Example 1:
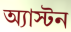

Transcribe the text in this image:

অ্যাস্টন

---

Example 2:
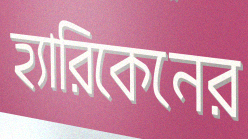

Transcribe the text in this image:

হ্যারিকেনের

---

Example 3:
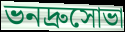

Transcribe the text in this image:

ভনদ্রুসোভা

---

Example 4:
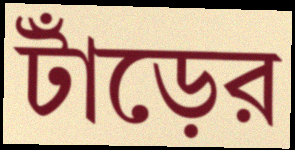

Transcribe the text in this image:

টাঁড়ের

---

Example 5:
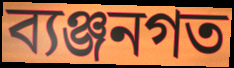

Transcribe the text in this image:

ব্যঞ্জনগত